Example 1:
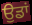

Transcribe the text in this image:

ਉਡਾਂ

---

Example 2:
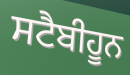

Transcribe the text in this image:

ਸਟੈਬੀਹੂਨ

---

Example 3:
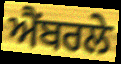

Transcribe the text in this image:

ਐਂਬਰਲੇ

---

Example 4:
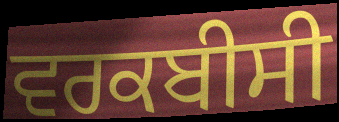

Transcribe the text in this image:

ਵਰਕਬੀਸੀ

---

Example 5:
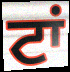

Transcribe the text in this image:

ਟਾਂ